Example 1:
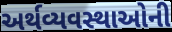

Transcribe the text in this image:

અર્થવ્યવસ્થાઓની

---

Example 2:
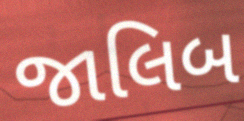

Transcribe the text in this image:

જાલિબ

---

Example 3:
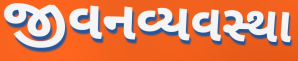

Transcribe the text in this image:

જીવનવ્યવસ્થા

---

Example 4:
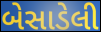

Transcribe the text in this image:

બેસાડેલી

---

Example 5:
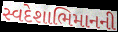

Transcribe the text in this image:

સ્વદેશાભિમાનની